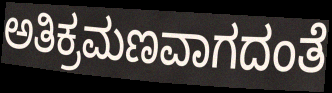
ಅತಿಕ್ರಮಣವಾಗದಂತೆ